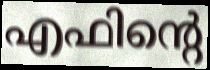
എഫിന്റെ